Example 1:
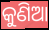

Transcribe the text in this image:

କୁଣିଆ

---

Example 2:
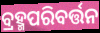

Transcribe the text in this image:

ବ୍ରହ୍ମପରିବର୍ତ୍ତନ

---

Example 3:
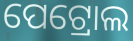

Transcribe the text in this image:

ପେଟ୍ରୋଲ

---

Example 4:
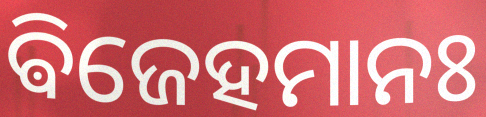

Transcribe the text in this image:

ଵିଜେହମାନଃ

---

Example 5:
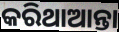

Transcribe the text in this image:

କରିଥାଆନ୍ତା